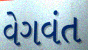
વેગવંત